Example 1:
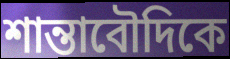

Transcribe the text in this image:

শান্তাবৌদিকে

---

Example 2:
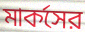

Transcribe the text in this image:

মার্কসের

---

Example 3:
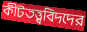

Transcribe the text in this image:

কীটতত্ত্ববিদদের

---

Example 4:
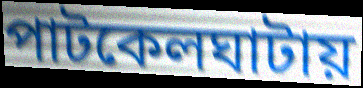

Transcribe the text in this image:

পাটকেলঘাটায়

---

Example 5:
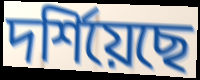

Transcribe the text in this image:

দর্শিয়েছে